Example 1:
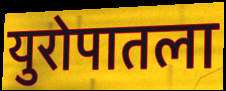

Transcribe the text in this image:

युरोपातला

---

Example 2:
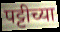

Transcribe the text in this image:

पट्टीच्या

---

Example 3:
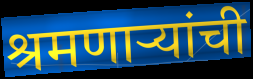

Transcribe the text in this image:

श्रमणाऱ्यांची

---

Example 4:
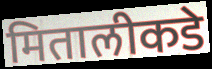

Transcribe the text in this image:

मितालीकडे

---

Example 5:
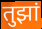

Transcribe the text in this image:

तुझां